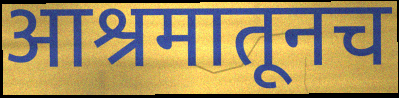
आश्रमातूनच